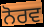
ਨੋਰਵ